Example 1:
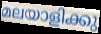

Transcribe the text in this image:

മലയാളിക്കു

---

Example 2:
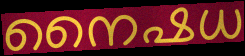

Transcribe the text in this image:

നൈഷധ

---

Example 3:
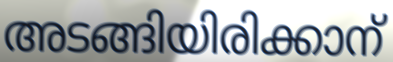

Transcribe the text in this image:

അടങ്ങിയിരിക്കാന്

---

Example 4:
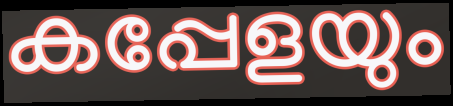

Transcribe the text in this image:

കപ്പേളയും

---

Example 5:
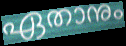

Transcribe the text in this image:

ഏതാനും